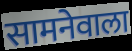
सामनेवाला